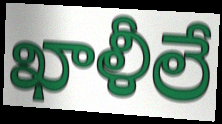
ఖాళీలే